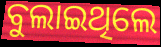
ବୁଲାଇଥିଲେ